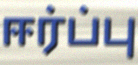
ஈர்ப்பு